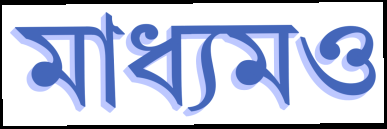
মাধ্যমও